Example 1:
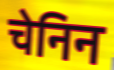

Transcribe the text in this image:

चेनिन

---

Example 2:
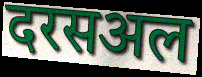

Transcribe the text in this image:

दरसअल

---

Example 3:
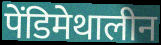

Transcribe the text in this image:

पेंडिमेथालीन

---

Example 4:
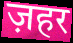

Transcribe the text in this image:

ज़हर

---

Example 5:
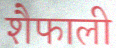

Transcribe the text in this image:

शैफाली